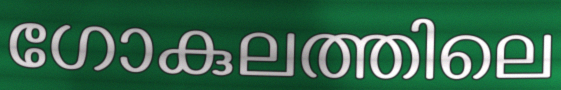
ഗോകുലത്തിലെ